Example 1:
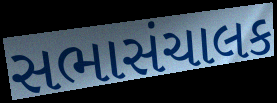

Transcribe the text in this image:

સભાસંચાલક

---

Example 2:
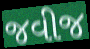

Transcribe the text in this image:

જવીજ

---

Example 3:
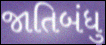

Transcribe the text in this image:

જાતિબંધુ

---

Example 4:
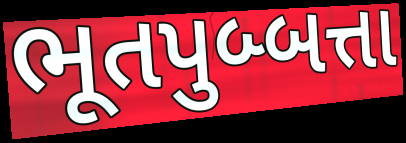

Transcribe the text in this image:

ભૂતપુબ્બત્તા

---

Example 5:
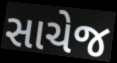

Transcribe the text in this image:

સાચેજ